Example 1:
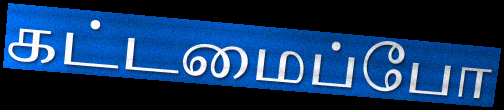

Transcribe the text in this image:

கட்டமைப்போ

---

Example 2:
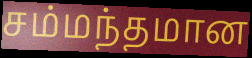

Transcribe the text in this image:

சம்மந்தமான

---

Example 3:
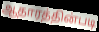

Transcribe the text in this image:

ஆதாரத்தின்படி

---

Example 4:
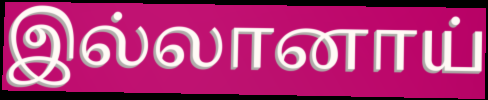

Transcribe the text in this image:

இல்லானாய்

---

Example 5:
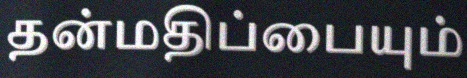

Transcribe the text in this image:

தன்மதிப்பையும்